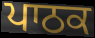
ਪਾਠਕ